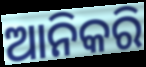
ଆନିକରି